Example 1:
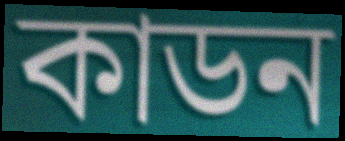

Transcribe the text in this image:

কাডন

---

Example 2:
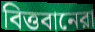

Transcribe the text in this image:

বিত্তবানেরা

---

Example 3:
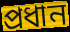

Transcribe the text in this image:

প্রধান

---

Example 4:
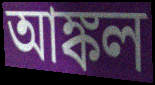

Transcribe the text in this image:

আঙ্কল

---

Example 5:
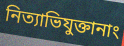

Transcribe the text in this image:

নিত্যাভিযুক্তানাং